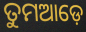
ତୁମଆଡ଼େ